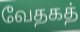
வேதகத்